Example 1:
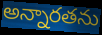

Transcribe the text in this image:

అన్నారతను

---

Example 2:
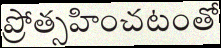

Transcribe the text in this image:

ప్రోత్సహించటంతో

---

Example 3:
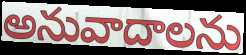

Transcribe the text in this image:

అనువాదాలను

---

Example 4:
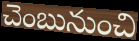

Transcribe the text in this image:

చెంబునుంచి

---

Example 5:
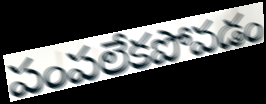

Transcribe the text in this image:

పంపలేకపోవడం